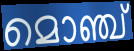
മൊഞ്ച്